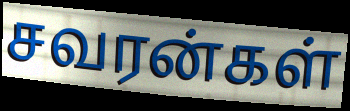
சவரன்கள்